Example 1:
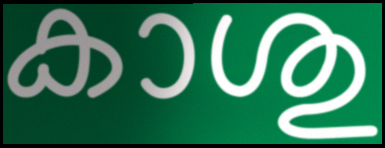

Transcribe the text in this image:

കാശു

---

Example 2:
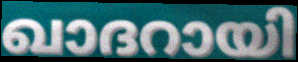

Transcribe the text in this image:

ഖാദറായി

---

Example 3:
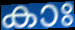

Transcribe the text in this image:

കാഃ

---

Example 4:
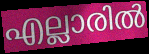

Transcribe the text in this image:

എല്ലാരിൽ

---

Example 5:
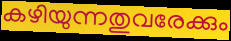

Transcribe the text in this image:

കഴിയുന്നതുവരേക്കും